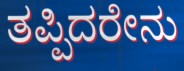
ತಪ್ಪಿದರೇನು